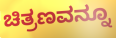
ಚಿತ್ರಣವನ್ನೂ